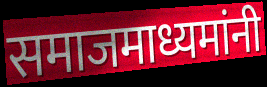
समाजमाध्यमांनी